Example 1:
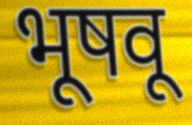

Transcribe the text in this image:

भूषवू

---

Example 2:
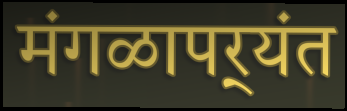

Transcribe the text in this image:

मंगळापर्यंत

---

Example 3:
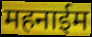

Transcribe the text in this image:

महनाईम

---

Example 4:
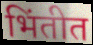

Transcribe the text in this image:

भिंतीत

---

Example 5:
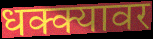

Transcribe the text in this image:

धक्क्यावर